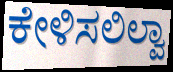
ಕೇಳಿಸಲಿಲ್ವಾ